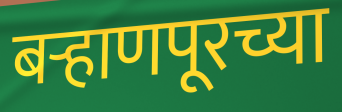
बऱ्हाणपूरच्या